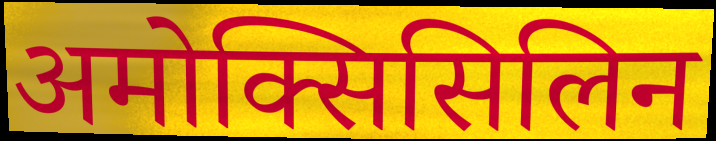
अमोक्सिसिलिन